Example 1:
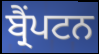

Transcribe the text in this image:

ਬ੍ਰੈਂਪਟਨ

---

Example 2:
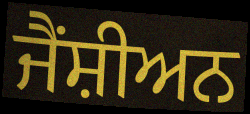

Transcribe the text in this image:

ਜੈਂਸ਼ੀਅਨ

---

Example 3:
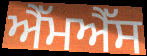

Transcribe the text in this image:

ਐੱਮਐੱਸ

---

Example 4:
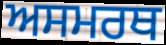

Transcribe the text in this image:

ਅਸਮਰਥ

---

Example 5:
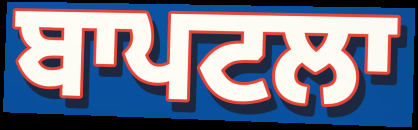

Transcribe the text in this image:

ਬਾਪਟਲਾ